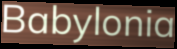
Babylonia